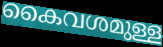
കൈവശമുള്ള